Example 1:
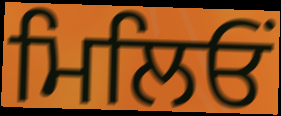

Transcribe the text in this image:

ਮਿਲਿਓਂ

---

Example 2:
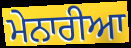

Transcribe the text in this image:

ਮੇਨਾਰੀਆ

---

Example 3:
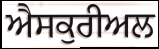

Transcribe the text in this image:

ਐਸਕੁਰੀਅਲ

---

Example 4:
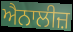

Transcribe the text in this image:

ਐਨਾਲੀਜ਼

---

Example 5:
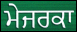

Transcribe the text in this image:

ਮੇਜਰਕਾ